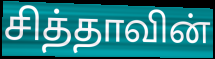
சித்தாவின்